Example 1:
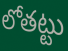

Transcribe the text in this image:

లోతట్టు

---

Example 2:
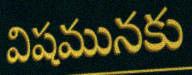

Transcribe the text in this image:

విషమునకు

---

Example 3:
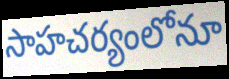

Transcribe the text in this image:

సాహచర్యంలోనూ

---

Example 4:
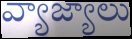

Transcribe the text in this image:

వ్యాజ్యాలు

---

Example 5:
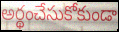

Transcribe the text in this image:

అర్థంచేసుకోకుండా